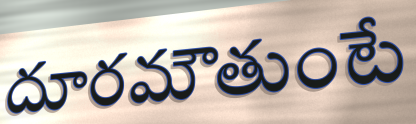
దూరమౌతుంటే